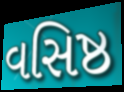
વસિષ્ઠ